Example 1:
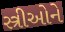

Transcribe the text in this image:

સ્ત્રીઓને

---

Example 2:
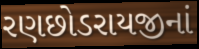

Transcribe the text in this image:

રણછોડરાયજીનાં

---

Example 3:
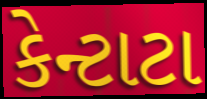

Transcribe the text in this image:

કેન્ટાટા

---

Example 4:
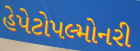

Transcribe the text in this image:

હેપેટોપલ્મોનરી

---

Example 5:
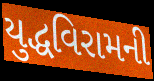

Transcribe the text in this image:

યુદ્ધવિરામની